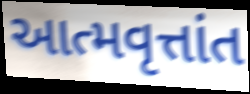
આત્મવૃત્તાંત